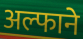
अल्फाने